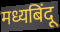
मध्यबिंदू